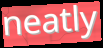
neatly